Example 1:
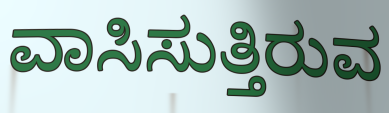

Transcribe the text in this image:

ವಾಸಿಸುತ್ತಿರುವ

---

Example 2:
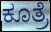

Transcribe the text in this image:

ಕೂತ್ರೆ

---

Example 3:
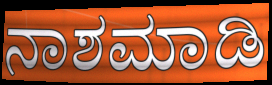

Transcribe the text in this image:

ನಾಶಮಾಡಿ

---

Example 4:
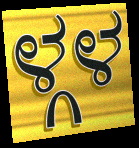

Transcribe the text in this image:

ಳ್ಗಳ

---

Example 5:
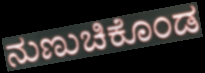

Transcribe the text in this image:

ನುಣುಚಿಕೊಂಡ